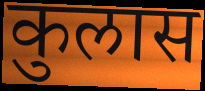
कुलास